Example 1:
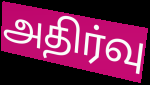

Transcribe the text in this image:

அதிர்வு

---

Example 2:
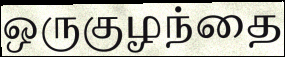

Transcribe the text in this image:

ஒருகுழந்தை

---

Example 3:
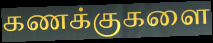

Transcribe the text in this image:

கணக்குகளை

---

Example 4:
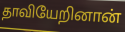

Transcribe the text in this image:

தாவியேறினான்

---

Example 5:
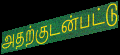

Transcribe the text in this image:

அதற்குடன்பட்டு